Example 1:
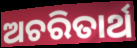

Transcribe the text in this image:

ଅଚରିତାର୍ଥ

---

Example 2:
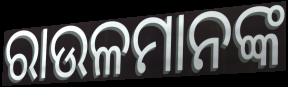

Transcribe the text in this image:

ରାଉଳମାନଙ୍କ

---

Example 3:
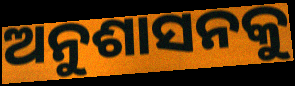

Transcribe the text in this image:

ଅନୁଶାସନକୁ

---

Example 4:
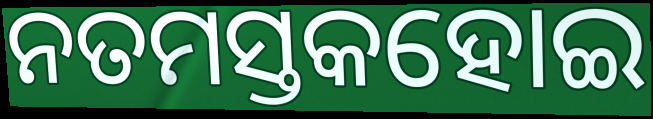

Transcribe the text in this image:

ନତମସ୍ତକହୋଇ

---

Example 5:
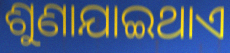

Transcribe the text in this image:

ଶୁଣାଯାଇଥାଏ